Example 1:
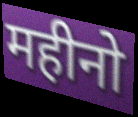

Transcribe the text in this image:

महीनो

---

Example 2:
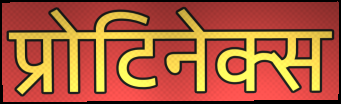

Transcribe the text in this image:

प्रोटिनेक्स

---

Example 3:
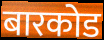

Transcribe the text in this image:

बारकोड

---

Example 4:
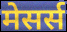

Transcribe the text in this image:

मेसर्स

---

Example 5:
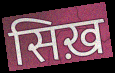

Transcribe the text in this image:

सिख़